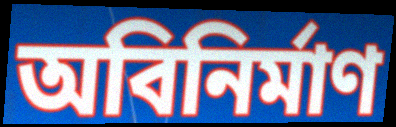
অবিনির্মাণ